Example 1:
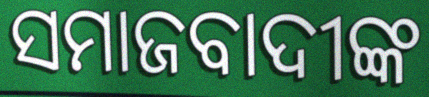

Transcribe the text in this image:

ସମାଜବାଦୀଙ୍କ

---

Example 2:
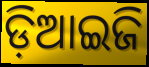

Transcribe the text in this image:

ଡ଼ିଆଇଜି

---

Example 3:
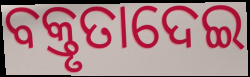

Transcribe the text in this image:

ବକ୍ତୃତାଦେଇ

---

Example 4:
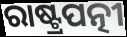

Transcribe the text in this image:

ରାଷ୍ଟ୍ରପତ୍ନୀ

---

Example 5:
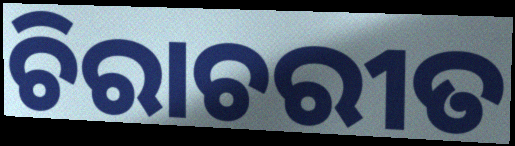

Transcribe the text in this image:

ଚିରାଚରୀତ